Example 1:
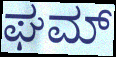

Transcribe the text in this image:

ಘಮ್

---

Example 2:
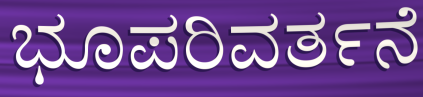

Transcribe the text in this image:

ಭೂಪರಿವರ್ತನೆ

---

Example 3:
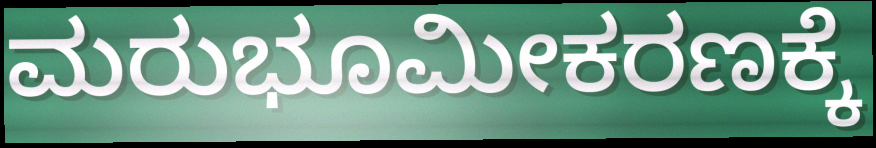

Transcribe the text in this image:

ಮರುಭೂಮೀಕರಣಕ್ಕೆ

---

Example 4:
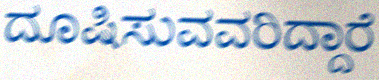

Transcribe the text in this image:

ದೂಷಿಸುವವರಿದ್ದಾರೆ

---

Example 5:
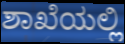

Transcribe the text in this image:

ಶಾಖೆಯಲ್ಲಿ